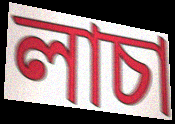
লাচা